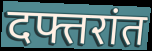
दफ्तरांत